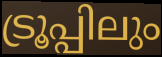
ട്രൂപ്പിലും